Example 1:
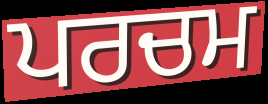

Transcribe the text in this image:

ਪਰਚਮ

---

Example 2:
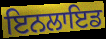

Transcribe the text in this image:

ਇਨਲਾਇਡ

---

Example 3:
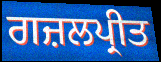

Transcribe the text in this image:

ਗਜ਼ਲਪ੍ਰੀਤ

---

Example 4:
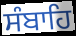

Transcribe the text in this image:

ਸੰਬਾਹਿ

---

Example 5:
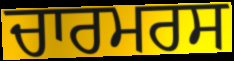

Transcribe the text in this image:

ਚਾਰਮਰਸ